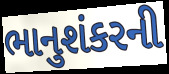
ભાનુશંકરની